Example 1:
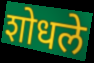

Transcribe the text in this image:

शोधले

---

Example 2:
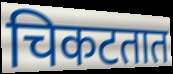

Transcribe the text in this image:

चिकटतात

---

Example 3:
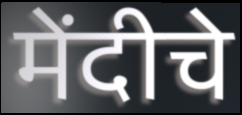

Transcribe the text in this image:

मेंदीचे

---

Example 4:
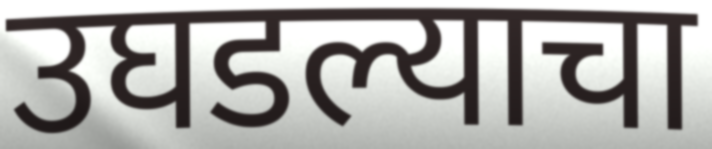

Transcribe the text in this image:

उघडल्याचा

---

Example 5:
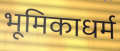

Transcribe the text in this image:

भूमिकाधर्म